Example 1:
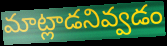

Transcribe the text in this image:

మాట్లాడనివ్వడం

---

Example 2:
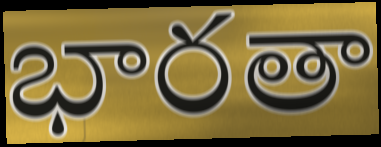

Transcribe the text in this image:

భారతా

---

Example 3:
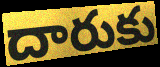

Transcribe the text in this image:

దారుకు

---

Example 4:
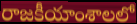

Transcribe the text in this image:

రాజకీయాంశాలలో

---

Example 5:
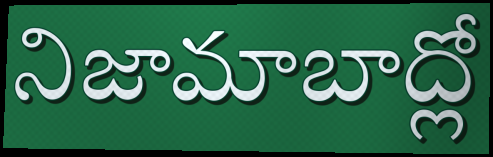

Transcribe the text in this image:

నిజామాబాద్లో